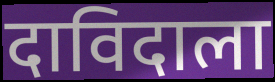
दाविदाला